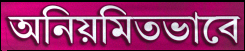
অনিয়মিতভাবে